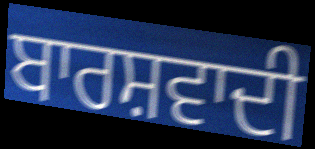
ਬਾਰਸ਼ਵਾਦੀ